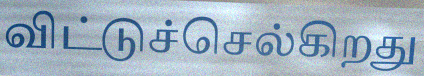
விட்டுச்செல்கிறது